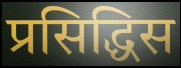
प्रसिद्धिस